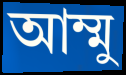
আম্মু